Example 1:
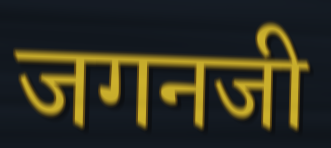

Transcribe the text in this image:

जगनजी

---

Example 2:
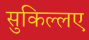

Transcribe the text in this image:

सुकिल्लए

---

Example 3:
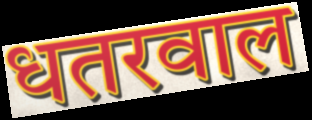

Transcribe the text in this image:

धतरवाल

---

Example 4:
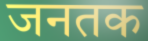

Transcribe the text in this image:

जनतक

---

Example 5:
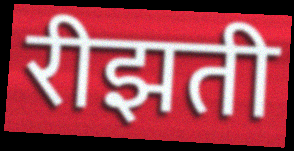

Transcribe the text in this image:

रीझती